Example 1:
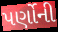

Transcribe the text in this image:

પર્ણોની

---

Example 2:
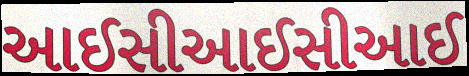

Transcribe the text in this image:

આઈસીઆઈસીઆઈ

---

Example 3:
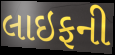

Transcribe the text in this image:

લાઇફની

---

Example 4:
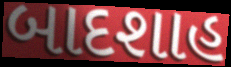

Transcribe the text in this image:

બાદશાહ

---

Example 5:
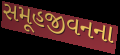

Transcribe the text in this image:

સમૂહજીવનના